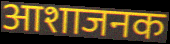
आशाजनक